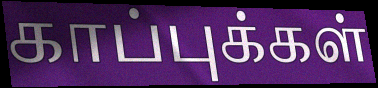
காப்புக்கள்